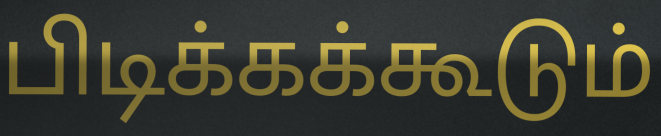
பிடிக்கக்கூடும்